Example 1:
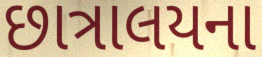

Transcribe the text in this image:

છાત્રાલયના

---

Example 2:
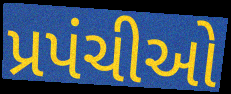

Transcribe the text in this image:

પ્રપંચીઓ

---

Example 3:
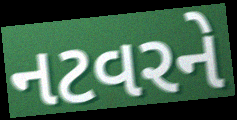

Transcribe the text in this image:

નટવરને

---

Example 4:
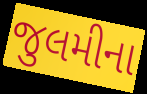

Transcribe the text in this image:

જુલમીના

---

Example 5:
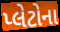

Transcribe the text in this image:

પ્લેટોના